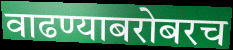
वाढण्याबरोबरच